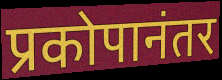
प्रकोपानंतर